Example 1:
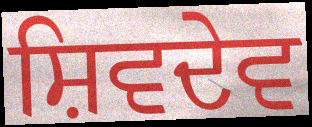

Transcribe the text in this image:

ਸ਼ਿਵਦੇਵ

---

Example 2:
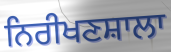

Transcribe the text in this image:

ਨਿਰੀਖਣਸ਼ਾਲਾ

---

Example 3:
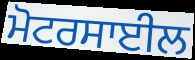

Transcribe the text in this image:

ਮੋਟਰਸਾਈਲ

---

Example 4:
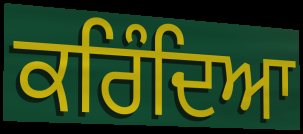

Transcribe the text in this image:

ਕਰਿੰਦਿਆ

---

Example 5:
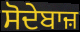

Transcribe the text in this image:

ਸੋਦੇਬਾਜ਼